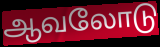
ஆவலோடு